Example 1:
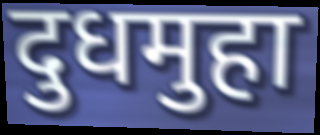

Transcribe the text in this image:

दुधमुहा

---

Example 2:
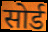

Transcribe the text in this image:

सोर्ड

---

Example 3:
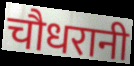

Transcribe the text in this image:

चौधरानी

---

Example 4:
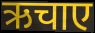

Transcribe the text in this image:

ऋचाए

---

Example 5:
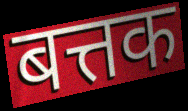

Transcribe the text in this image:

बत्तक